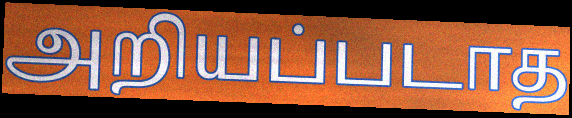
அறியப்படாத